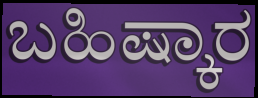
ಬಹಿಷ್ಕಾರ